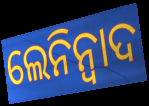
ଲେନିନ୍ବାଦ